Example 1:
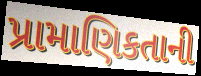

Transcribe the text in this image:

પ્રામાણિકતાની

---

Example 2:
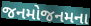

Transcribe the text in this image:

જનમોજનમના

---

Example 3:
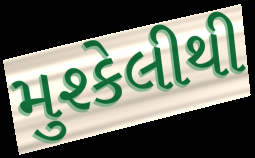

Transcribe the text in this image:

મુશ્કેલીથી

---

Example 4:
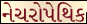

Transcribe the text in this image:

નેચરોપેથિક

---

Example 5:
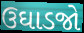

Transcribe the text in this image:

ઉઘાડજો